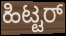
ಹಿಟ್ಟರ್